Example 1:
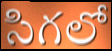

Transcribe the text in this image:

సిగలో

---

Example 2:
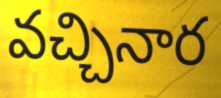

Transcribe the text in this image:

వచ్చినార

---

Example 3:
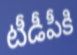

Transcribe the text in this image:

టీడీపీకి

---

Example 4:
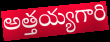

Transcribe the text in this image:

అత్తయ్యగారి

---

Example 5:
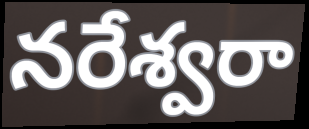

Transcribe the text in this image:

నరేశ్వరా